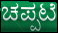
ಚಪ್ಪಟೆ